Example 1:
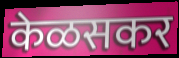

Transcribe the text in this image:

केळसकर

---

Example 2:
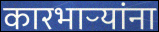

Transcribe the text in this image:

कारभाऱ्यांना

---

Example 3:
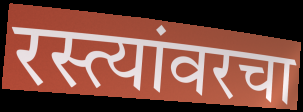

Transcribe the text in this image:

रस्त्यांवरचा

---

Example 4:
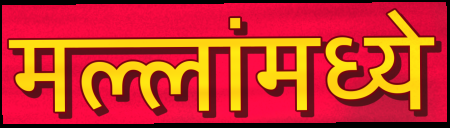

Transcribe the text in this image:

मल्लांमध्ये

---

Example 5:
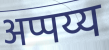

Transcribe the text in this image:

अप्पय्य